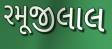
રમૂજીલાલ